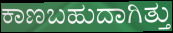
ಕಾಣಬಹುದಾಗಿತ್ತು